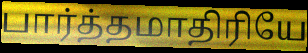
பார்த்தமாதிரியே